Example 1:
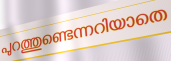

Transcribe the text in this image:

പുറത്തുണ്ടെന്നറിയാതെ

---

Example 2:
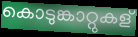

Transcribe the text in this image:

കൊടുങ്കാറ്റുകള്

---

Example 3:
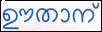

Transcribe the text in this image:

ഊതാന്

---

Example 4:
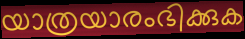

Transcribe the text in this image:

യാത്രയാരംഭിക്കുക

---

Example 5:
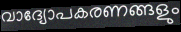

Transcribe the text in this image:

വാദ്യോപകരണങ്ങളും